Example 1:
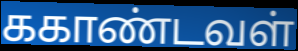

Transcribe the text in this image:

ககாண்டவள்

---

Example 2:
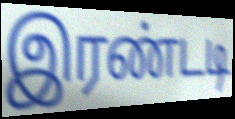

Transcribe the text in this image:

இரண்டடி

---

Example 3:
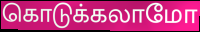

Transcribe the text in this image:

கொடுக்கலாமோ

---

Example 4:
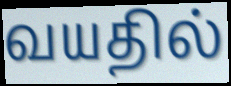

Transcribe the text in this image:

வயதில்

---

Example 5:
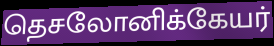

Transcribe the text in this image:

தெசலோனிக்கேயர்